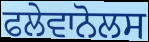
ਫਲੇਵਾਨੋਲਸ